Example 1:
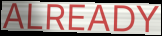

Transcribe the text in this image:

ALREADY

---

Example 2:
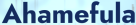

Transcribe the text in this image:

Ahamefula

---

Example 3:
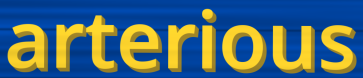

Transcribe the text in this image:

arterious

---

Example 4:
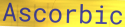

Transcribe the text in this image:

Ascorbic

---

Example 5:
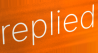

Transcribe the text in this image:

replied